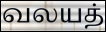
வலயத்